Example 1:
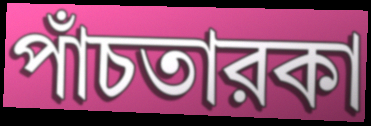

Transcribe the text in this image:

পাঁচতারকা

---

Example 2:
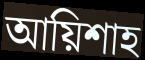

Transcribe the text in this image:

আয়িশাহ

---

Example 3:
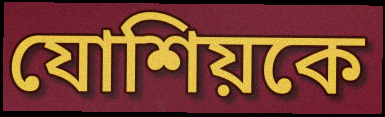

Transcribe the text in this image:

যোশিয়কে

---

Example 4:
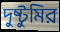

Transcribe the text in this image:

দুষ্টুমির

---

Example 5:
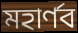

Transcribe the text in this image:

মহার্ণব